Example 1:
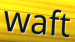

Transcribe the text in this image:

waft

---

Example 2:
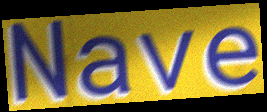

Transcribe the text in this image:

Nave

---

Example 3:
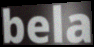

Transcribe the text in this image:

bela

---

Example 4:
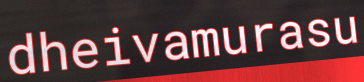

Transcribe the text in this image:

dheivamurasu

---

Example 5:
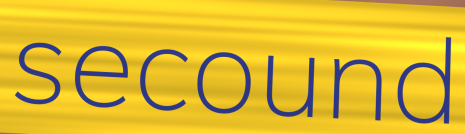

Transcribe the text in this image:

secound